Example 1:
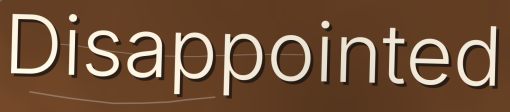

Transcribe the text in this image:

Disappointed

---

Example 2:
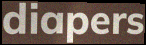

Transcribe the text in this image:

diapers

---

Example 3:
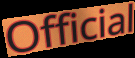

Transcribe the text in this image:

Official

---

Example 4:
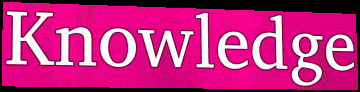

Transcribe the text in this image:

Knowledge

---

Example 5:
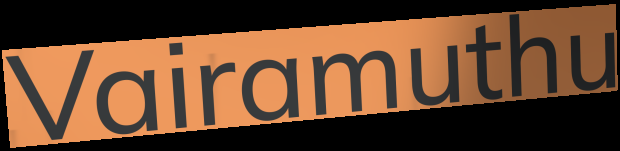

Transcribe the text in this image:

Vairamuthu